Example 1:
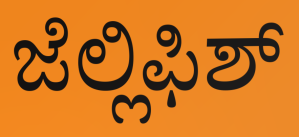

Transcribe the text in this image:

ಜೆಲ್ಲಿಫಿಶ್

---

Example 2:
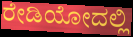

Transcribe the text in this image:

ರೇಡಿಯೋದಲ್ಲಿ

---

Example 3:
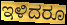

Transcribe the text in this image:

ಇಳಿದರೂ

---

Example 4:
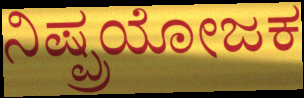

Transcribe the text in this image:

ನಿಷ್ಪ್ರಯೋಜಕ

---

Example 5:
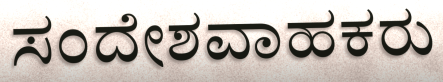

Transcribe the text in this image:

ಸಂದೇಶವಾಹಕರು